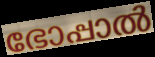
ഭോപ്പാൽ